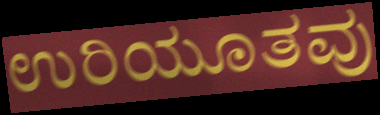
ಉರಿಯೂತವು